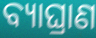
ବ୍ୟାଘ୍ରାଣ